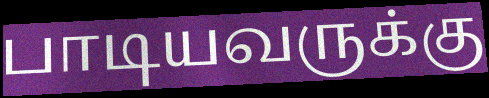
பாடியவருக்கு